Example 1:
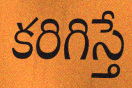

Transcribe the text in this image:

కరిగిస్తే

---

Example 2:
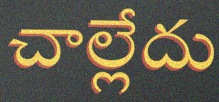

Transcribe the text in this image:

చాల్లేదు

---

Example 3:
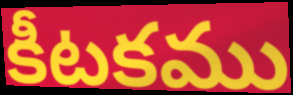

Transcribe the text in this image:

కీటకము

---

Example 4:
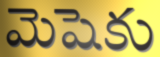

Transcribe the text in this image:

మెషెకు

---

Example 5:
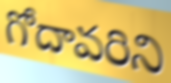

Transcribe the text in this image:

గోదావరిని